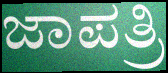
ಜಾಪತ್ರಿ